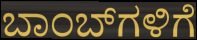
ಬಾಂಬ್‌ಗಳಿಗೆ